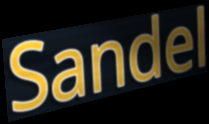
Sandel